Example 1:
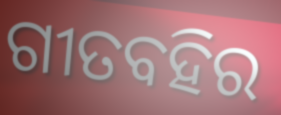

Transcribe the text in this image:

ଗୀତବହିର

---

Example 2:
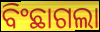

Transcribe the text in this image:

ବିଂଛାଗଲା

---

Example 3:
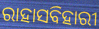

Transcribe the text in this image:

ରାହାସବିହାରୀ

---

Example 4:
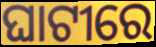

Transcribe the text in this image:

ଘାଟୀରେ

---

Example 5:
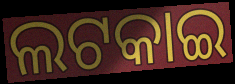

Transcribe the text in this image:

ଲଟକାଇ